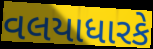
વલયાધારકે